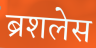
ब्रशलेस